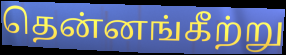
தென்னங்கீற்று